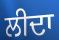
ਲੀਦਾ